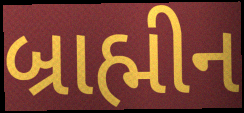
બ્રાહ્મીન